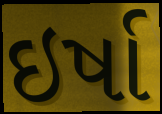
ઇર્ષા